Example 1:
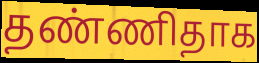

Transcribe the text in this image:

தண்ணிதாக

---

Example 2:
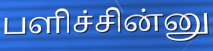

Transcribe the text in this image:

பளிச்சின்னு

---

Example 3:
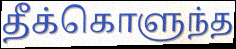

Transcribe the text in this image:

தீக்கொளுந்த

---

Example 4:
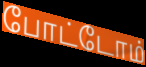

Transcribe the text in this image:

போட்டோம்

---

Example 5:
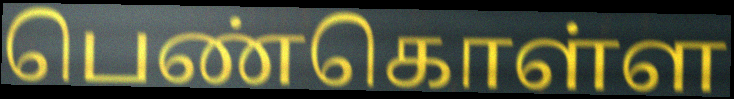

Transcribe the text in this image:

பெண்கொள்ள